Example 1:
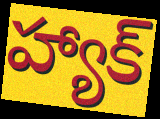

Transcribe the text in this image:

హ్యాక్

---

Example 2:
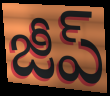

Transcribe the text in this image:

జీప్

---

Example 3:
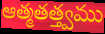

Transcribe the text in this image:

ఆత్మతత్త్వము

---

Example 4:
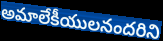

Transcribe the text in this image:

అమాలేకీయులనందరిని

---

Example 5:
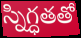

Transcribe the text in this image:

స్నిగ్ధతతో